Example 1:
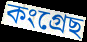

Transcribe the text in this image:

কংগ্ৰেছ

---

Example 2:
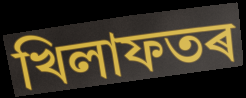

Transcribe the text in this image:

খিলাফতৰ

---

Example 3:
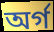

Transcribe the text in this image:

অৰ্গ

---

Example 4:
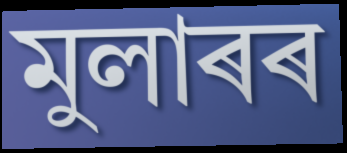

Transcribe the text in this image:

মুলাৰৰ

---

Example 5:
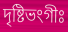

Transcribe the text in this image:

দৃষ্টিভংগীঃ